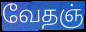
வேதஞ்